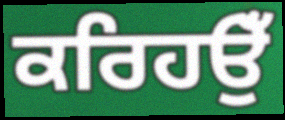
ਕਰਿਹਉਁ